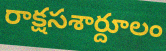
రాక్షసశార్దూలం